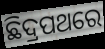
ଛିଦ୍ରପଥରେ